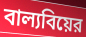
বাল্যবিয়ের